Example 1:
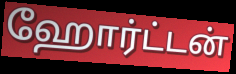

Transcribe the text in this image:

ஹோர்ட்டன்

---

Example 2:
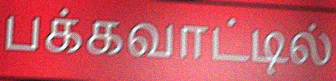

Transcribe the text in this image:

பக்கவாட்டில்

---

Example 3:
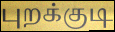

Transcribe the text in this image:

புறக்குடி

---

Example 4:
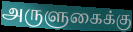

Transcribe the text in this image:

அருளுகைக்கு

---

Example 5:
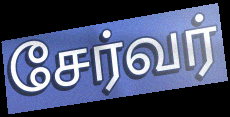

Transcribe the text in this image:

சேர்வர்